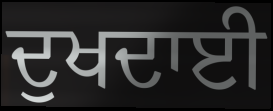
ਦੁਖਦਾਈ